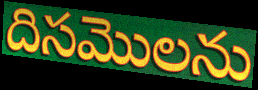
దిసమొలను